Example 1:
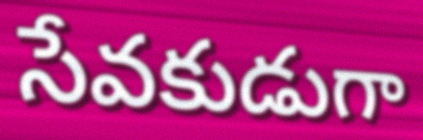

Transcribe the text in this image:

సేవకుడుగా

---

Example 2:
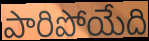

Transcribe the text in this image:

పారిపోయేది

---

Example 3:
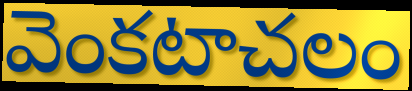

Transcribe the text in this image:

వెంకటాచలం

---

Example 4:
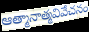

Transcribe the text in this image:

ఆత్మానాత్మవివేచనం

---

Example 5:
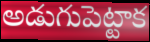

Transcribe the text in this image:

అడుగుపెట్టాక